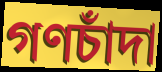
গণচাঁদা